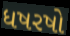
ધષરષો